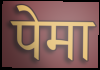
पेमा